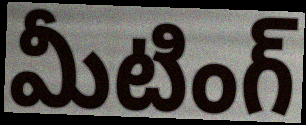
మీటింగ్